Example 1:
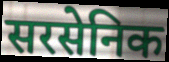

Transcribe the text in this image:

सरसेनिक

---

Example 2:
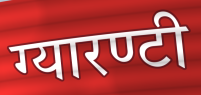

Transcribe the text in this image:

ग्यारण्टी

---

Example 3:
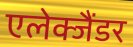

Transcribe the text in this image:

एलेक्जैंडर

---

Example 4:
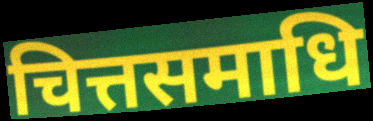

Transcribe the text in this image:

चित्तसमाधि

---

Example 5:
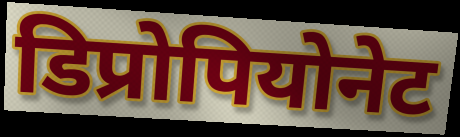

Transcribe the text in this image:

डिप्रोपियोनेट